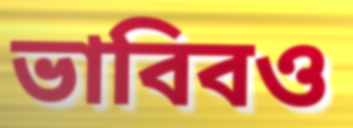
ভাবিবও